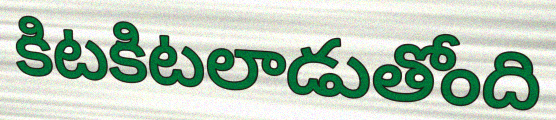
కిటకిటలాడుతోంది